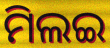
ମିଲଇ